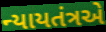
ન્યાયતંત્રએ